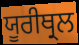
ਯੂਰੀਥ੍ਰਲ